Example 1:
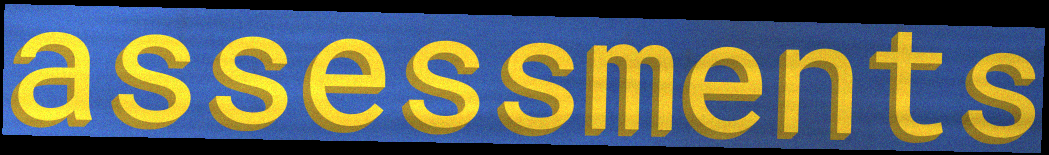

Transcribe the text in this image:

assessments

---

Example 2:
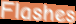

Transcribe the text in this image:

Flashes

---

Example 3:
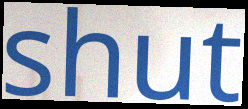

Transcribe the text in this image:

shut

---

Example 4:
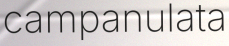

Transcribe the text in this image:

campanulata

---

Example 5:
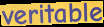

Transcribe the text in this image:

veritable